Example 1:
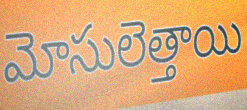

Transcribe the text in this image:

మోసులెత్తాయి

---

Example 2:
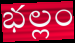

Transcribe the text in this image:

భల్లం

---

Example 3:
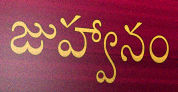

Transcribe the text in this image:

జుహ్వానం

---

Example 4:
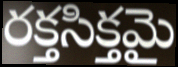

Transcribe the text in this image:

రక్తసిక్తమై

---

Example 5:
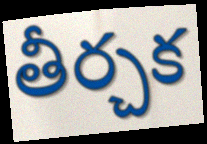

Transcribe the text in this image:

తీర్చక